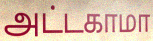
அட்டகாமா